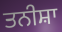
ਤਨੀਸ਼ਾ